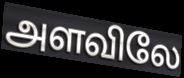
அளவிலே